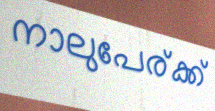
നാലുപേര്ക്ക്